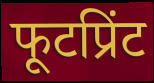
फूटप्रिंट